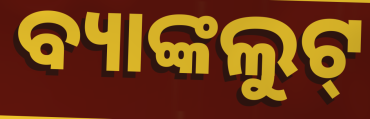
ବ୍ୟାଙ୍କଲୁଟ୍